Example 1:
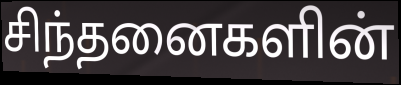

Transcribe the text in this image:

சிந்தனைகளின்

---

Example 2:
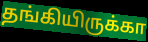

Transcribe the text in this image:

தங்கியிருக்கா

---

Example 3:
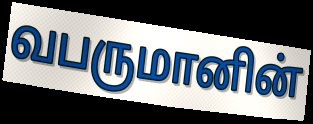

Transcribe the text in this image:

வபருமானின்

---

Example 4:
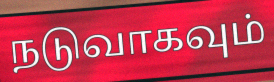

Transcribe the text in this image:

நடுவாகவும்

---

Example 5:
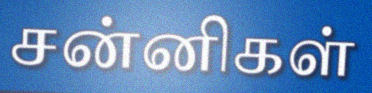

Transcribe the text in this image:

சன்னிகள்